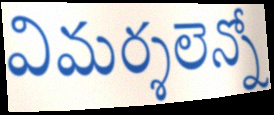
విమర్శలెన్నో